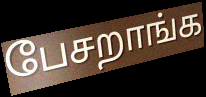
பேசறாங்க